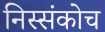
निस्संकोच